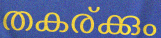
തകര്ക്കും